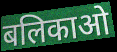
बलिकाओ